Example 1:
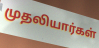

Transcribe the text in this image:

முதலியார்கள்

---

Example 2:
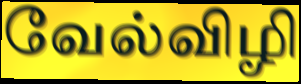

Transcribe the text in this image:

வேல்விழி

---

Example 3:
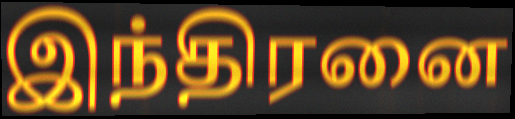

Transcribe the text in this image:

இந்திரனை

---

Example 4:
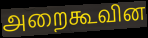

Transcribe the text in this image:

அறைகூவின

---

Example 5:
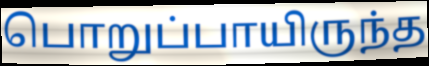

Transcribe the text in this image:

பொறுப்பாயிருந்த